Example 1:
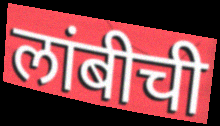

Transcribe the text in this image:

लांबीची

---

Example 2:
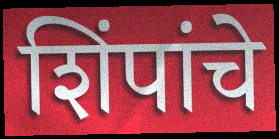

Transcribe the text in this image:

शिंपांचे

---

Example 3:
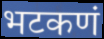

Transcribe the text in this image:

भटकणं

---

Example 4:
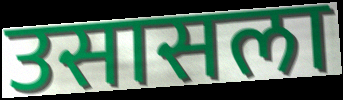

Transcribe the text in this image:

उसासला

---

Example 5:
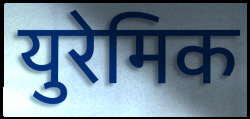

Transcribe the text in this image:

युरेमिक